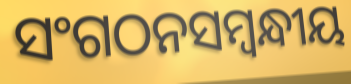
ସଂଗଠନସମ୍ବନ୍ଧୀୟ